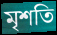
মৃশতি